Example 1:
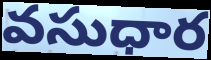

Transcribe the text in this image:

వసుధార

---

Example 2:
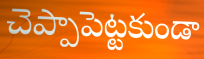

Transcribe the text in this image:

చెప్పాపెట్టకుండా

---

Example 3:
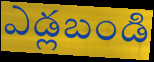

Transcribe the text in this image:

ఎడ్లబండి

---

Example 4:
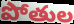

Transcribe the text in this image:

పోతుల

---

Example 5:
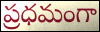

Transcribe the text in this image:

ప్రధమంగా